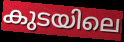
കുടയിലെ